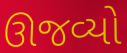
ઊજવ્યો